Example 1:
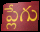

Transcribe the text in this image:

ప్లేగు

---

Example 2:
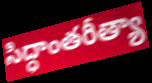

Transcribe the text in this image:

సిద్ధాంతరీత్యా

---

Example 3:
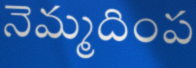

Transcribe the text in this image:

నెమ్మదింప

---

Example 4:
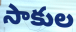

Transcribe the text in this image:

సాకుల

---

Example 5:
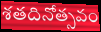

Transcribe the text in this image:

శతదినోత్సవం